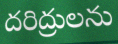
దరిద్రులను